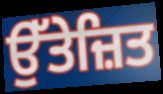
ਉੱਤੇਜ਼ਿਤ